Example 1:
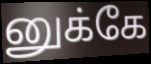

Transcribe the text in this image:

னுக்கே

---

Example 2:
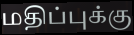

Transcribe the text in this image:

மதிப்புக்கு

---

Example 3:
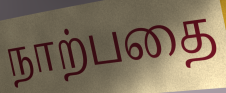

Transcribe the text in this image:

நாற்பதை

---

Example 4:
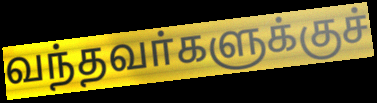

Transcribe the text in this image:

வந்தவர்களுக்குச்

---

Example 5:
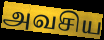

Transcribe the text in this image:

அவசிய